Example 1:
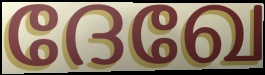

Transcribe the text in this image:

ദേഖേ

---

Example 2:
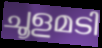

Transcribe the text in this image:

ചൂളമടി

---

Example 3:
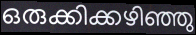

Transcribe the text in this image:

ഒരുക്കിക്കഴിഞ്ഞു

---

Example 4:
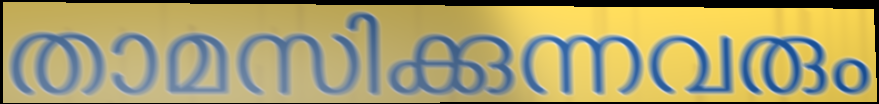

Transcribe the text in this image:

താമസിക്കുന്നവരും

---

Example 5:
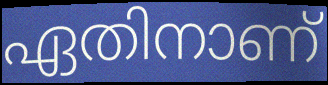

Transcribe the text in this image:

ഏതിനാണ്